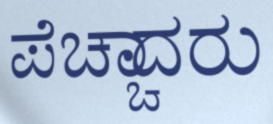
ಪೆಚ್ಚಾದರು